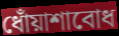
ধোঁয়াশাবোধ